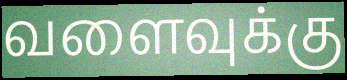
வளைவுக்கு